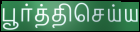
பூர்த்திசெய்ய